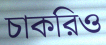
চাকরিও